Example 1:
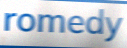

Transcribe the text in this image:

romedy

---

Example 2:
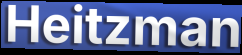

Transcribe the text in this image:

Heitzman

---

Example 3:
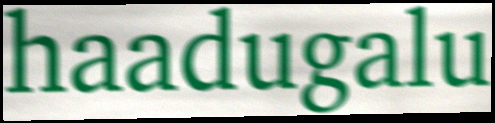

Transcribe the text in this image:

haadugalu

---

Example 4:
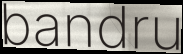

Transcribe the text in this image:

bandru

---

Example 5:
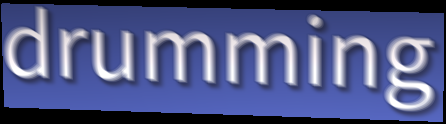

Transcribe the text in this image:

drumming